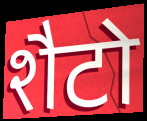
शैटो